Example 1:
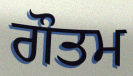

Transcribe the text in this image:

ਗੌਤਮ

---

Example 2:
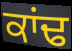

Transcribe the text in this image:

ਕਾਂਢ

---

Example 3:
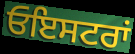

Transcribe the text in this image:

ਓਇਸਟਰਾਂ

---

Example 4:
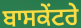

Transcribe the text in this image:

ਬਾਸਕੇਂਟਰੇ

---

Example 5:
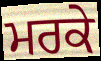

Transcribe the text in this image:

ਮਰਕੇ